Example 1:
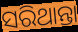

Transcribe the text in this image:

ସରିଥାନ୍ତା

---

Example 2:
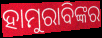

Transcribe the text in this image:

ହାମୁରାବିଙ୍କର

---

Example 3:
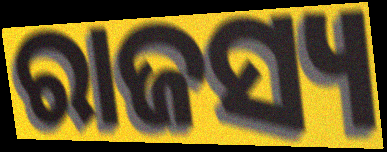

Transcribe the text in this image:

ରାଜସ୍ୟ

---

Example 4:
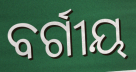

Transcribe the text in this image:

ବର୍ଗୀୟ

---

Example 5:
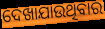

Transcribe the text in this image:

ଦେଖାଯାଉଥିବାର